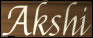
Akshi